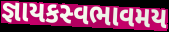
જ્ઞાયકસ્વભાવમય